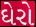
ઘેરો